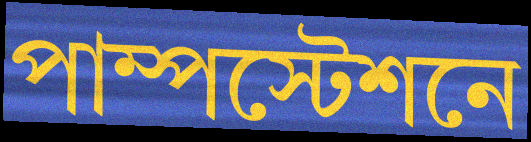
পাম্পস্টেশনে